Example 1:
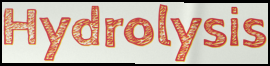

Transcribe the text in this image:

Hydrolysis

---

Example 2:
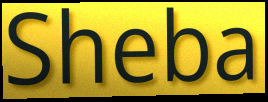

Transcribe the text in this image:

Sheba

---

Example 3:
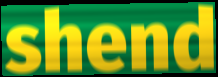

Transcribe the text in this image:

shend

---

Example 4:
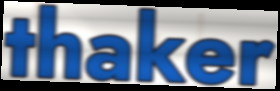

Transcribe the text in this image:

thaker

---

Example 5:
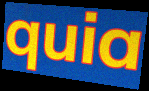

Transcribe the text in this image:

quia